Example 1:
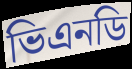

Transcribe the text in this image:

ভিএনডি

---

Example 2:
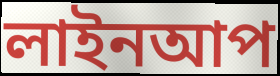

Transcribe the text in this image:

লাইনআপ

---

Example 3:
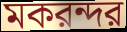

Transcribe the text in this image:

মকরন্দর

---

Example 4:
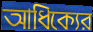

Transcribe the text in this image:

আধিক্যের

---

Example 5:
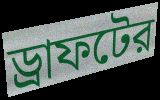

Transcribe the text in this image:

ড্রাফটের